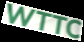
WTTC